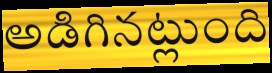
అడిగినట్లుంది